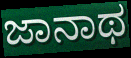
ಜಾನಾಥ